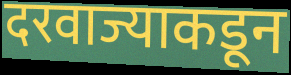
दरवाज्याकडून